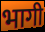
भागी